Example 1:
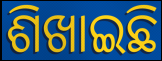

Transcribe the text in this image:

ଶିଖାଇଛି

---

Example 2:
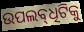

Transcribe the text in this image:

ଉପଲବ୍‌ଧିଟିକୁ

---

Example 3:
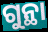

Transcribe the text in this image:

ଗୁନ୍ଥା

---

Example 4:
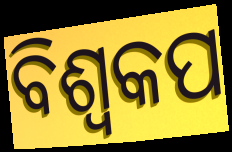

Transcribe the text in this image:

ବିଶ୍ୱକପ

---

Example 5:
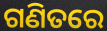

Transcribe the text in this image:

ଗଣିତରେ